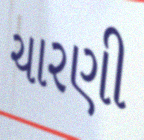
ચારણી